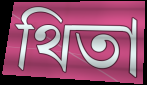
থিতা